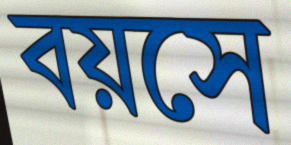
বয়সে